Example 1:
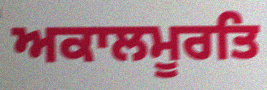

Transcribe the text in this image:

ਅਕਾਲਮੂਰਤਿ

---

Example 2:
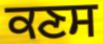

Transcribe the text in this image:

ਕਣਸ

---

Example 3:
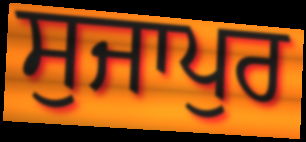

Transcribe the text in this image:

ਸੁਜਾਪੁਰ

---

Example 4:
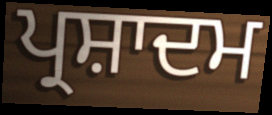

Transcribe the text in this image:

ਪ੍ਰਸ਼ਾਦਮ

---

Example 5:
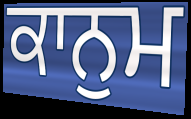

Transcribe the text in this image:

ਕਾਨੁਮ